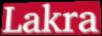
Lakra